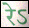
रेऽ